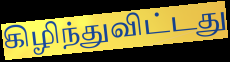
கிழிந்துவிட்டது